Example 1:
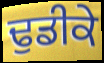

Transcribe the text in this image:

ਢੁਡੀਕੇ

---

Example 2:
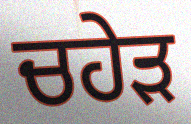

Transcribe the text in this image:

ਚਹੇੜ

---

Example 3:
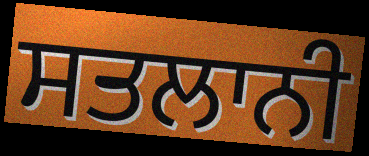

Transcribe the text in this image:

ਸਤਲਾਨੀ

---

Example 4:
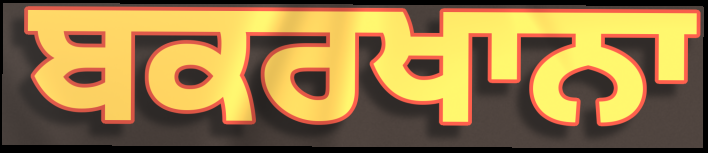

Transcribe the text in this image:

ਬਕਰਖਾਨਾ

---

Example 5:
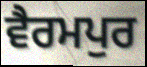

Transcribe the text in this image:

ਵੈਰਮਪੁਰ